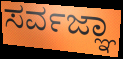
ಸರ್ವಜ್ಞಾ